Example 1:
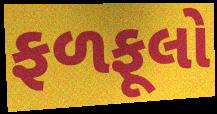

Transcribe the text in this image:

ફળફૂલો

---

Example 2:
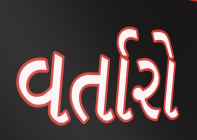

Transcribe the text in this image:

વર્તારો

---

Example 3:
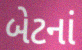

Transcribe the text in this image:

બેટનાં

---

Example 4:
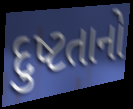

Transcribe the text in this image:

દુષ્ટતાનો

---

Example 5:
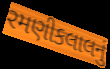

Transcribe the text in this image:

રમણીકલાલનું